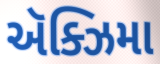
ઍક્ઝિમા